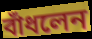
বাঁধলেন